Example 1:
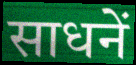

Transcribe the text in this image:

साधनें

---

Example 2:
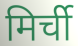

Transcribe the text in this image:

मिर्ची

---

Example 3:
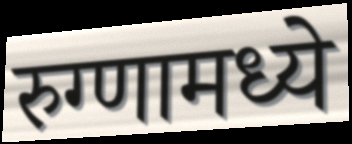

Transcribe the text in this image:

रुग्णामध्ये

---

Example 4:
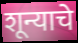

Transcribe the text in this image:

शून्याचे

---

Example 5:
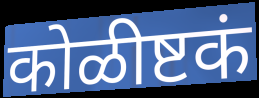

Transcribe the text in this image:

कोळीष्टकं